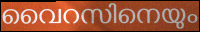
വൈറസിനെയും